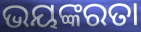
ଭୟଙ୍କରତା